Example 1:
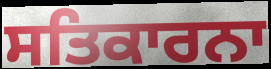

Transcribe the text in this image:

ਸਤਿਕਾਰਨਾ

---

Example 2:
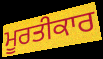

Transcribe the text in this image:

ਮੂਰਤੀਕਾਰ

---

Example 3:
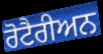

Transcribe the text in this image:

ਰੋਟੈਰੀਅਨ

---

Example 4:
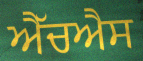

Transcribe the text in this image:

ਐੱਚਐਸ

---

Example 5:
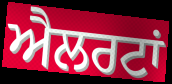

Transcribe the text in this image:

ਐਲਰਟਾਂ